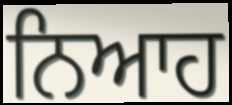
ਨਿਆਹ